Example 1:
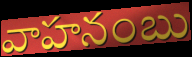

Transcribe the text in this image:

వాహనంబు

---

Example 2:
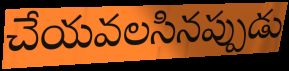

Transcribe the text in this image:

చేయవలసినప్పుడు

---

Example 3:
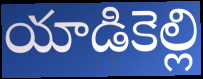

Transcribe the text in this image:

యాడికెల్లి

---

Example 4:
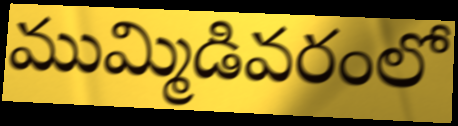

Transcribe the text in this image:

ముమ్మిడివరంలో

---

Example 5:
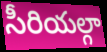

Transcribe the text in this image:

సీరియల్గా